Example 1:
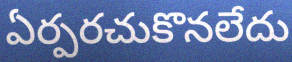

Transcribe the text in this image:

ఏర్పరచుకొనలేదు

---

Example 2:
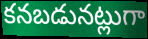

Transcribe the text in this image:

కనబడునట్లుగా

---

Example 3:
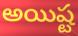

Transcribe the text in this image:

అయిష్ట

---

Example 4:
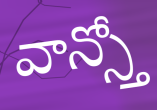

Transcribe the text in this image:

వాన్స్తో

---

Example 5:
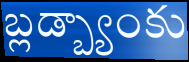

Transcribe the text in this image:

బ్లడ్బ్యాంకు